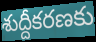
శుద్దీకరణకు